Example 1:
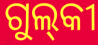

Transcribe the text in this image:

ଗୁଲ୍‌କୀ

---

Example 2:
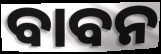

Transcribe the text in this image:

ବାବନ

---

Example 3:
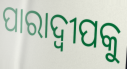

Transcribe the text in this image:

ପାରାଦ୍ୱୀପକୁ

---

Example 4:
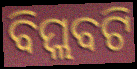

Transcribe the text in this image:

ବିପ୍ଲବଟି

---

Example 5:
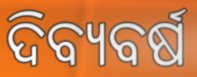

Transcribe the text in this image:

ଦିବ୍ୟବର୍ଷ